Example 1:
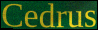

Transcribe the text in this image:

Cedrus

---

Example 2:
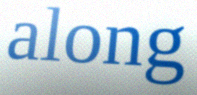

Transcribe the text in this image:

along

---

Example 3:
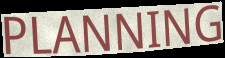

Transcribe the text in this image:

PLANNING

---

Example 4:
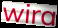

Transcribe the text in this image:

wira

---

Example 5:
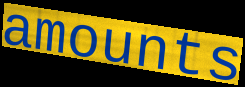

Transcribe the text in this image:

amounts